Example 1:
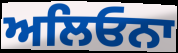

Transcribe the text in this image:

ਅਲਿਓਨਾ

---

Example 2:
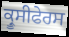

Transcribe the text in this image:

ਕ੍ਰੂਸੀਫੇਰਸ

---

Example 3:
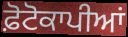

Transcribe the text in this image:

ਫ਼ੋਟੋਕਾਪੀਆਂ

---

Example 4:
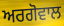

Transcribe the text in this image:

ਅਰਗੋਵਾਲ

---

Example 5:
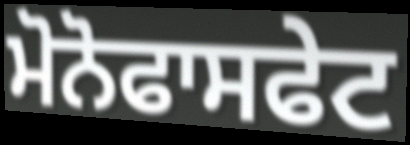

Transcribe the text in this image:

ਮੋਨੋਫਾਸਫੇਟ